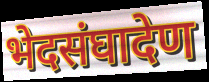
भेदसंघादेण